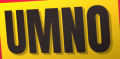
UMNO